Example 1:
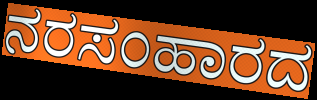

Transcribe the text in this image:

ನರಸಂಹಾರದ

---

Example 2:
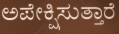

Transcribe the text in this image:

ಅಪೇಕ್ಷಿಸುತ್ತಾರೆ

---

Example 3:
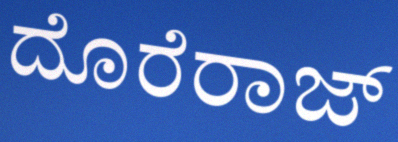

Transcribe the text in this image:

ದೊರೆರಾಜ್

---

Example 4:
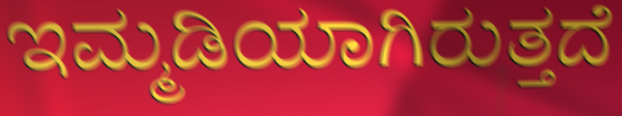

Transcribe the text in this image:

ಇಮ್ಮಡಿಯಾಗಿರುತ್ತದೆ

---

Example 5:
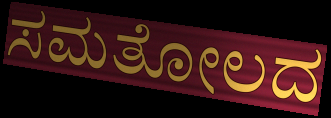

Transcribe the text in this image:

ಸಮತೋಲದ